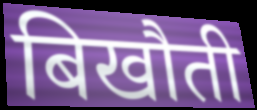
बिखौती